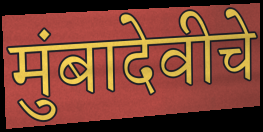
मुंबादेवीचे